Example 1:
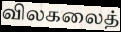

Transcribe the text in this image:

விலகலைத்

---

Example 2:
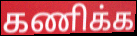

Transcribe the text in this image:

கணிக்க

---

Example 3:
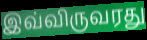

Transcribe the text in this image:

இவ்விருவரது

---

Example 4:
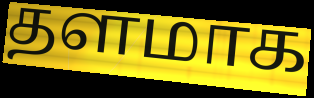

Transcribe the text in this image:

தளமாக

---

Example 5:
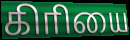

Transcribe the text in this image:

கிரியை